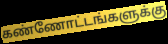
கண்ணோட்டங்களுக்கு